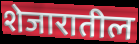
शेजारातील